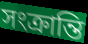
সংক্রান্তি